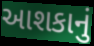
આશકાનું